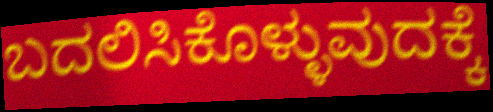
ಬದಲಿಸಿಕೊಳ್ಳುವುದಕ್ಕೆ